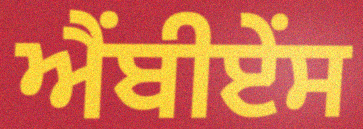
ਐਂਬੀਏਂਸ